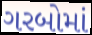
ગરબોમાં